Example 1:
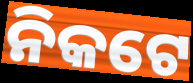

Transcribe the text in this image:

ନିକଟେ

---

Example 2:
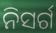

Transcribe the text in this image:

ନିସର୍ଗ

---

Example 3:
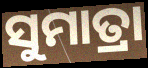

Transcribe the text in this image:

ସୁମାତ୍ରା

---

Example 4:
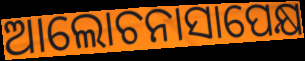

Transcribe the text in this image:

ଆଲୋଚନାସାପେକ୍ଷ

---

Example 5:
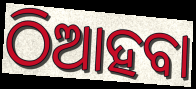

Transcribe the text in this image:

ଠିଆହବା